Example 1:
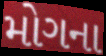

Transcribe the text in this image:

મોગના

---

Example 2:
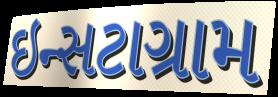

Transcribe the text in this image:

ઇન્સટાગ્રામ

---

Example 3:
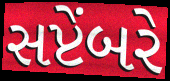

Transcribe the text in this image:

સપ્ટેંબરે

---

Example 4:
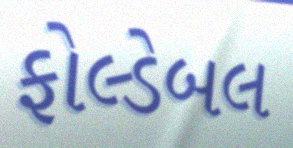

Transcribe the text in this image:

ફોલ્ડેબલ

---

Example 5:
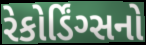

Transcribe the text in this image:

રેકોર્ડિંગ્સનો